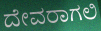
ದೇವರಾಗಲಿ